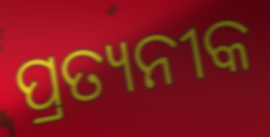
ପ୍ରତ୍ୟନୀକ